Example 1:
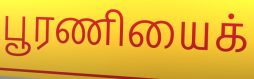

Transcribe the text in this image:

பூரணியைக்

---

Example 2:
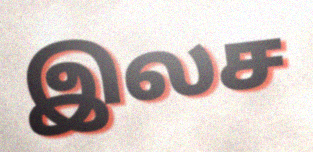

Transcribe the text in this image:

இலச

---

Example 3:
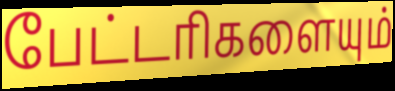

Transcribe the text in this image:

பேட்டரிகளையும்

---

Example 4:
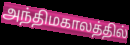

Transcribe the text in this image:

அந்திமகாலத்தில்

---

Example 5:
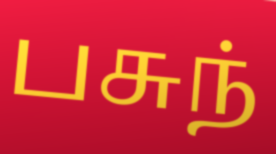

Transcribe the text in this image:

பசுந்